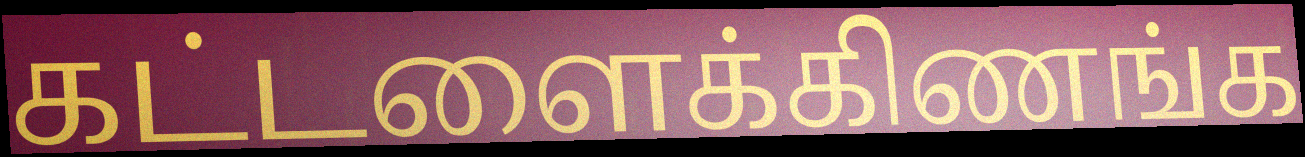
கட்டளைக்கிணங்க